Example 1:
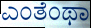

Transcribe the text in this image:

ಎಂತೆಂಥಾ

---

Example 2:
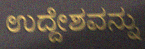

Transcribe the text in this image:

ಉದ್ದೇಶವನ್ನು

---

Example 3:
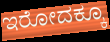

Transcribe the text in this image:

ಇರೋದಕ್ಕೂ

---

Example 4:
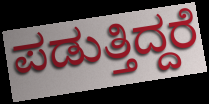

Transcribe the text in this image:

ಪಡುತ್ತಿದ್ದರೆ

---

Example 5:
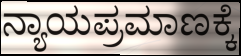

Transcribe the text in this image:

ನ್ಯಾಯಪ್ರಮಾಣಕ್ಕೆ